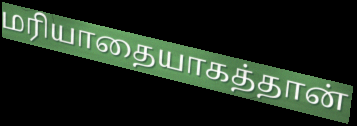
மரியாதையாகத்தான்